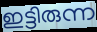
ഇട്ടിരുന്ന